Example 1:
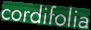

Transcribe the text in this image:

cordifolia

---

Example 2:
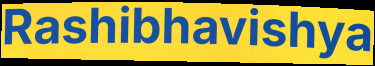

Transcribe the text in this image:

Rashibhavishya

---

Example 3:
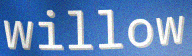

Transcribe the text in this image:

willow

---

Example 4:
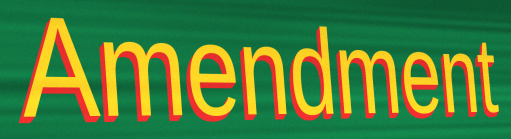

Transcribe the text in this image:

Amendment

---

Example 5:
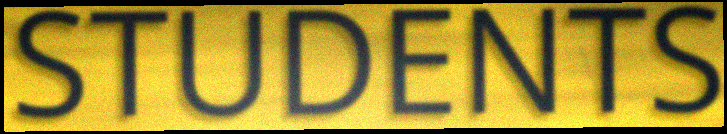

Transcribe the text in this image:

STUDENTS